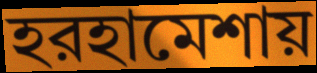
হরহামেশায়